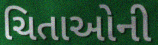
ચિતાઓની